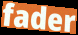
fader